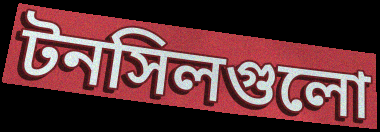
টনসিলগুলো